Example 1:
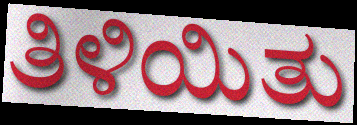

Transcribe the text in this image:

ತಿಳಿಯಿತು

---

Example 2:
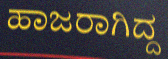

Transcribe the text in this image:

ಹಾಜರಾಗಿದ್ದ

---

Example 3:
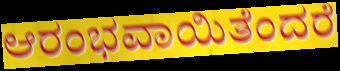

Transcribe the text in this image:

ಆರಂಭವಾಯಿತೆಂದರೆ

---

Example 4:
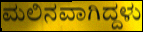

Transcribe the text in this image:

ಮಲಿನವಾಗಿದ್ದಳು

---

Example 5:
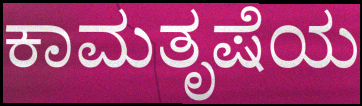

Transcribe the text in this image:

ಕಾಮತೃಷೆಯ